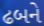
ઢબને